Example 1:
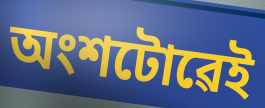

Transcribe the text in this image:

অংশটোৱেই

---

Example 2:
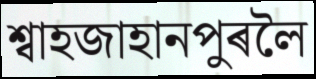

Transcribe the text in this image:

শ্বাহজাহানপুৰলৈ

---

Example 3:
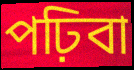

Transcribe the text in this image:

পঢ়িবা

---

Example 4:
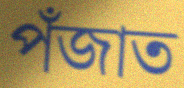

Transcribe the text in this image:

পঁজাত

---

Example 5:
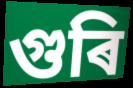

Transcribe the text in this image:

গুৰি